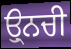
ਉ੍ਨਚੀ